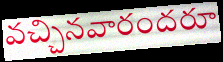
వచ్చినవారందరూ